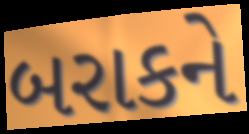
બરાકને